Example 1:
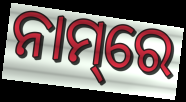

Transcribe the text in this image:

ନାମ୍‌ରେ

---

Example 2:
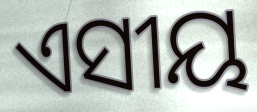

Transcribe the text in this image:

ଏସୀୟ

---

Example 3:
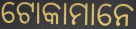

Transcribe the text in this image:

ଟୋକାମାନେ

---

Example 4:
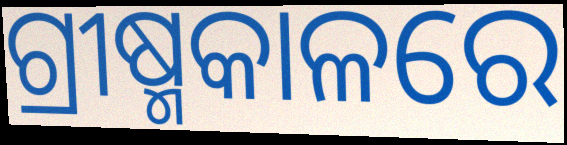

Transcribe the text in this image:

ଗ୍ରୀଷ୍ମକାଳରେ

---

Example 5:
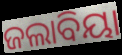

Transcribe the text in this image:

ଜଲାବିୟା